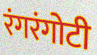
रंगरंगोटी